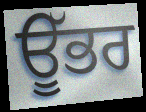
ਊੱਭਰ